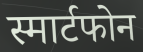
स्‍मार्टफोन